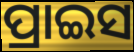
ପ୍ରାଇସ